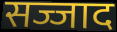
सज्‍जाद